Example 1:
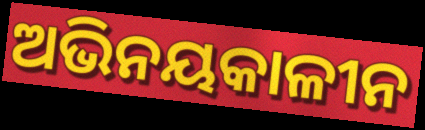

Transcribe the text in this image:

ଅଭିନୟକାଳୀନ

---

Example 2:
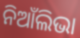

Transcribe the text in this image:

ନିଆଁଲିଭା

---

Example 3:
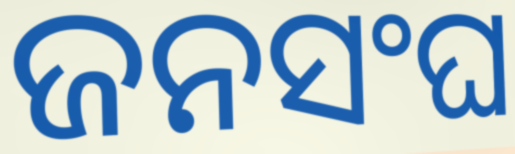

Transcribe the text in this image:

ଜନସଂଘ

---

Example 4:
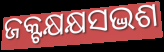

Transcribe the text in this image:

ଜକ୍ଟକ୍ଷକ୍ଷସଦ୍ଭଶ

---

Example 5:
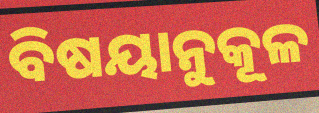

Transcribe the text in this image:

ବିଷୟାନୁକୂଳ